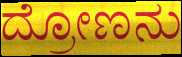
ದ್ರೋಣನು